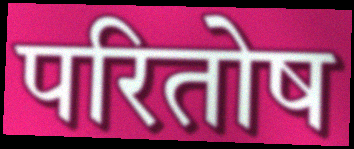
परितोष